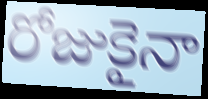
రోజుకైనా